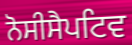
ਨੋਸੀਸੈਪਟਿਵ